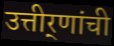
उत्तीर्णांची